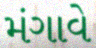
મંગાવે